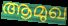
ആമുഖ